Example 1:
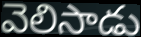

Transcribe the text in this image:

వెలిసాడు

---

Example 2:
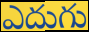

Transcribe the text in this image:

ఎదుగు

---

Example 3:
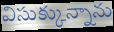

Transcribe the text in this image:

విసుక్కున్నాను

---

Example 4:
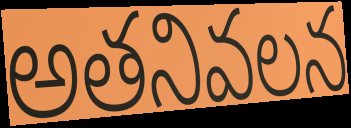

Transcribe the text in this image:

అతనివలన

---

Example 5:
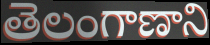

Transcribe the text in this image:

తెలంగాణాని